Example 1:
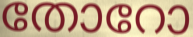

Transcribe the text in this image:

തോറോ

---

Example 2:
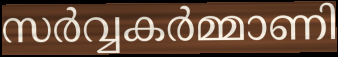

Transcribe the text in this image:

സർവ്വകർമ്മാണി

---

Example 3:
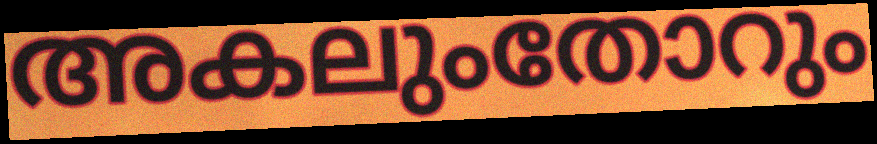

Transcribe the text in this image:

അകലുംതോറും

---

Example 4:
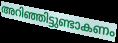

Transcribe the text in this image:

അറിഞ്ഞിട്ടുണ്ടാകണം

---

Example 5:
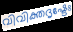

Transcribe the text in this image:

വിവിക്തദൃഷ്ടേഃ